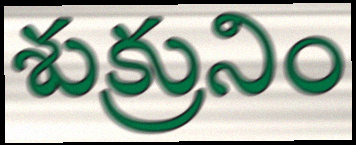
శుక్రునిం